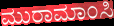
ಮುರಾಮಾಂಸಿ